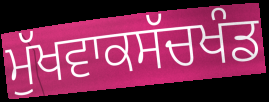
ਮੁੱਖਵਾਕਸੱਚਖੰਡ